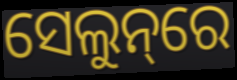
ସେଲୁନ୍‌ରେ